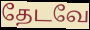
தேடவே